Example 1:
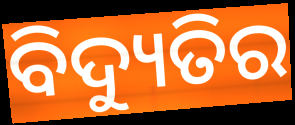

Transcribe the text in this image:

ବିଦ୍ୟୁତିର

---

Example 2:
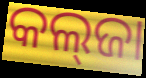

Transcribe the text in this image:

କଲ୍‌ଜା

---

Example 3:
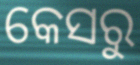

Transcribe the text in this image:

କେସରୁ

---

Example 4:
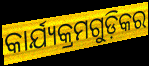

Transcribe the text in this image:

କାର୍ଯ୍ୟକ୍ରମଗୁଡ଼ିକର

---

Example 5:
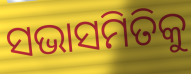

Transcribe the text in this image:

ସଭାସମିତିକୁ